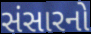
સંસારનો